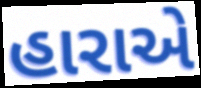
હારાએ